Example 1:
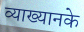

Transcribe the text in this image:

व्याख्यानके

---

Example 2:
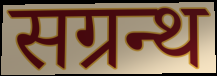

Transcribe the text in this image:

सग्रन्थ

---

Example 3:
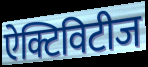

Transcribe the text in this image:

ऐक्टिविटीज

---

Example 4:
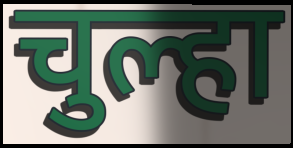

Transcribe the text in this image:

चुल्हा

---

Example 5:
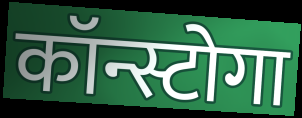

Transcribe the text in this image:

कॉन्स्टोगा